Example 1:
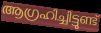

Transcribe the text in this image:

ആഗ്രഹിച്ചിട്ടുണ്ട്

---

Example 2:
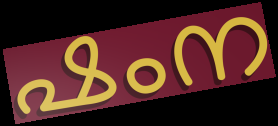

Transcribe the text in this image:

ഷംന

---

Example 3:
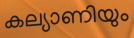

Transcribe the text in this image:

കല്യാണിയും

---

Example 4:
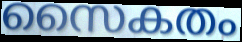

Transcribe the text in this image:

സൈകതം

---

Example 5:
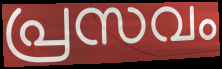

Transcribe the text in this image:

പ്രസവം